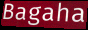
Bagaha